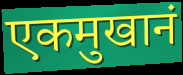
एकमुखानं